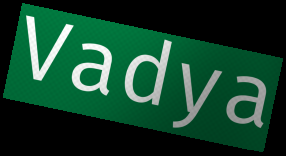
Vadya